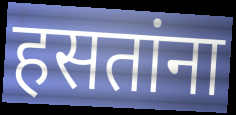
हसतांना